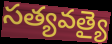
సత్యవత్యై